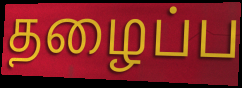
தழைப்ப